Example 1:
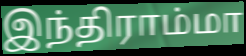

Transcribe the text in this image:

இந்திராம்மா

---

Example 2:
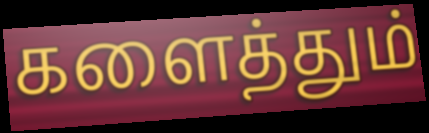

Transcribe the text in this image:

களைத்தும்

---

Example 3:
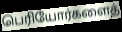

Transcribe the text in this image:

பெரியோர்களைத்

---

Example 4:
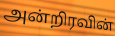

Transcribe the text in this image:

அன்றிரவின்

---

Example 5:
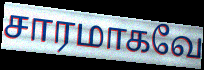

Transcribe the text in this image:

சாரமாகவே